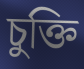
চুক্তি